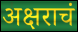
अक्षराचं